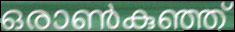
ഒരാൺകുഞ്ഞ്